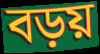
বড়য়